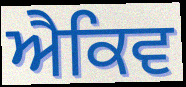
ਐਕਿਵ